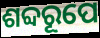
ଶବ୍ଦରୂପେ